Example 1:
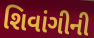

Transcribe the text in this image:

શિવાંગીની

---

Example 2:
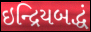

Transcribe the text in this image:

ઇન્દ્રિયબદ્ધં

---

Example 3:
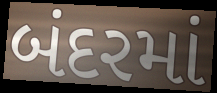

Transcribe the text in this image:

બંદરમાં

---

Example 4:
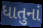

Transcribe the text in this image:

ધાતુનાં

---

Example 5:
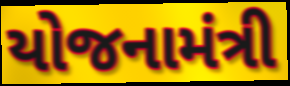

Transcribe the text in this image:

યોજનામંત્રી